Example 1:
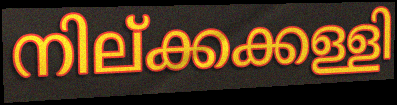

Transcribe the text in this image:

നില്ക്കക്കള്ളി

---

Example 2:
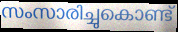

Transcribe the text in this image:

സംസാരിച്ചുകൊണ്ട്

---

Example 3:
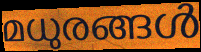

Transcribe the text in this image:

മധുരങ്ങൾ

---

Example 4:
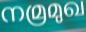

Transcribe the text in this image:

നമ്രമുഖ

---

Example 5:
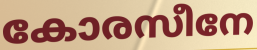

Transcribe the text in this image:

കോരസീനേ